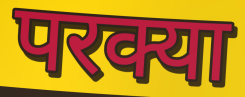
परक्या